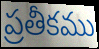
ప్రతీకము